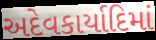
અદેવકાર્યાદિમાં